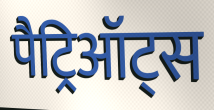
पैट्रिऑट्स